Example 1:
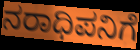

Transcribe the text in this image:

ನರಾಧಿಪನಿಗೆ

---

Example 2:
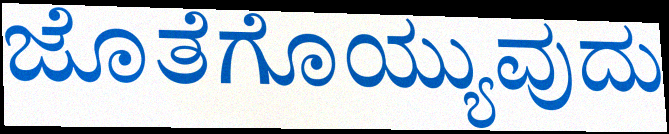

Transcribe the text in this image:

ಜೊತೆಗೊಯ್ಯುವುದು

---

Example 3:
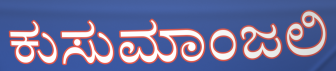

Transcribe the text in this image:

ಕುಸುಮಾಂಜಲಿ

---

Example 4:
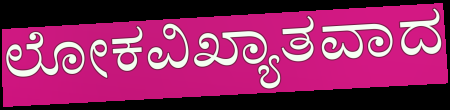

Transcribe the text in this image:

ಲೋಕವಿಖ್ಯಾತವಾದ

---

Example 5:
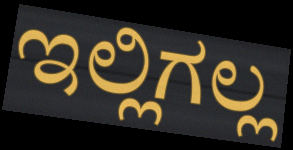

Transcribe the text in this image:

ಇಲ್ಲಿಗಲ್ಲ